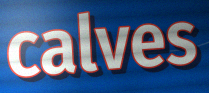
calves